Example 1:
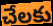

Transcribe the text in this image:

చేలకు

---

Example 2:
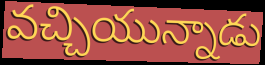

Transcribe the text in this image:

వచ్చియున్నాడు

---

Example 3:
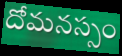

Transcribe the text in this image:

దోమనస్సం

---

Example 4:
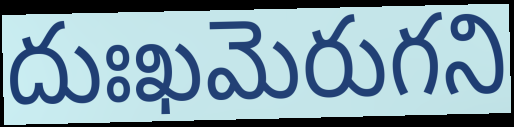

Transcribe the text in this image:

దుఃఖమెరుగని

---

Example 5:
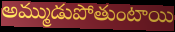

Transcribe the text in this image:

అమ్ముడుపోతుంటాయి